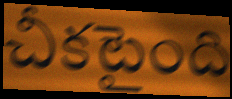
చీకటైంది